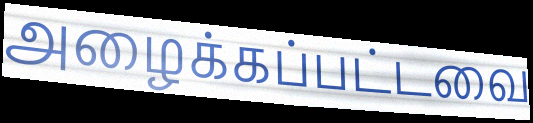
அழைக்கப்பட்டவை